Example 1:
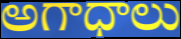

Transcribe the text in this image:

అగాధాలు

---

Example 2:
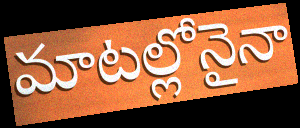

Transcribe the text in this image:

మాటల్లోనైనా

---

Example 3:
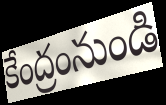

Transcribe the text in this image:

కేంద్రంనుండి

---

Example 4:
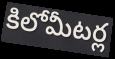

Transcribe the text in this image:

కిలోమీటర్ల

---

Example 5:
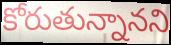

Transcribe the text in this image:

కోరుతున్నానని